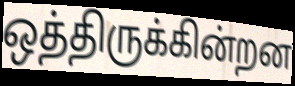
ஒத்திருக்கின்றன